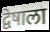
द्वेषाला